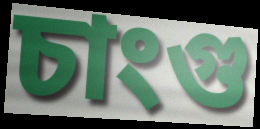
চাংগু